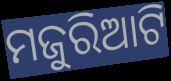
ମଜୁରିଆଟି